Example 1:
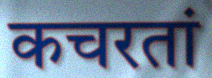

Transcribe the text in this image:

कचरतां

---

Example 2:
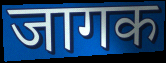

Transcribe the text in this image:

जागक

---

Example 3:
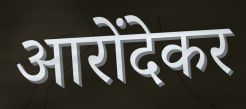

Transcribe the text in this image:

आरोंदेकर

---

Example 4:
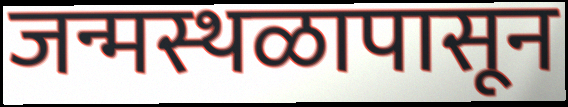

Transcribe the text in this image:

जन्मस्थळापासून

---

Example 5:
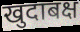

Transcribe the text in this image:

खुदाबक्ष